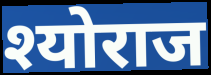
श्योराज